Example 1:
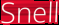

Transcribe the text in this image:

Snell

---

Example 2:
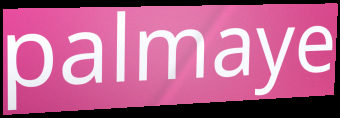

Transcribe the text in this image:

palmaye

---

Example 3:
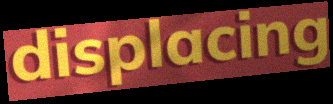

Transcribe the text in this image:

displacing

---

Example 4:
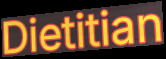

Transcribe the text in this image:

Dietitian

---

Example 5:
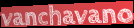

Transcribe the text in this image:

vanchavano